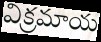
విక్రమాయ